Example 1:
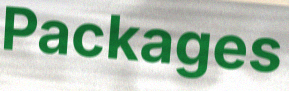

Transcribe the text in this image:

Packages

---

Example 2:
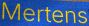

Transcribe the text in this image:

Mertens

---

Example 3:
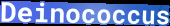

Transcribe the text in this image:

Deinococcus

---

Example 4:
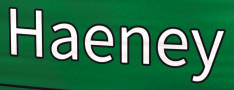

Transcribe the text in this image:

Haeney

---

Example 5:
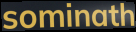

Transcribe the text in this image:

sominath